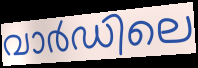
വാർഡിലെ